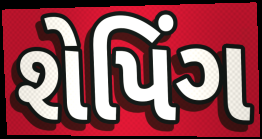
શેપિંગ